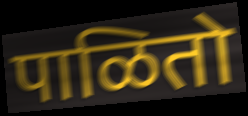
पाळितो